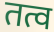
तत्व